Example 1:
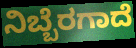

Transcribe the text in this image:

ನಿಬ್ಬೆರಗಾದೆ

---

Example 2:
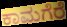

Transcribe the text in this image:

ಕಾಮಗೆರೆ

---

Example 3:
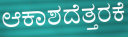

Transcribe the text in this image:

ಆಕಾಶದೆತ್ತರಕೆ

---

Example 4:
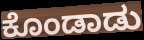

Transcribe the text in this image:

ಕೊಂಡಾಡು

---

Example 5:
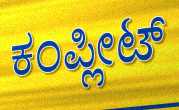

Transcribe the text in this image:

ಕಂಪ್ಲೀಟ್